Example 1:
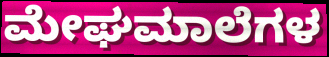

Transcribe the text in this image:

ಮೇಘಮಾಲೆಗಳ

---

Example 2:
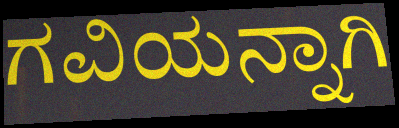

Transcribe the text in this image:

ಗವಿಯನ್ನಾಗಿ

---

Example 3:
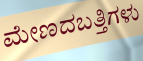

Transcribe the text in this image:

ಮೇಣದಬತ್ತಿಗಳು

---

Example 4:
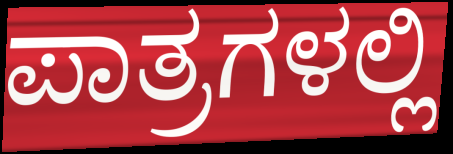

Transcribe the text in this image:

ಪಾತ್ರಗಳಲ್ಲಿ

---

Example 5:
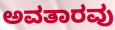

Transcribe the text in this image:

ಅವತಾರವು